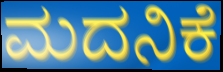
ಮದನಿಕೆ